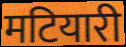
मटियारी